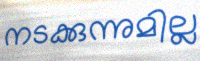
നടക്കുന്നുമില്ല